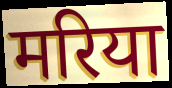
मरिया